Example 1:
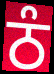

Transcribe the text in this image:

ਠੰ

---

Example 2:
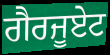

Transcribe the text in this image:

ਗੈਰਜੂਏਟ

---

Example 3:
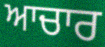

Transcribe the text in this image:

ਆਚਾਰ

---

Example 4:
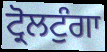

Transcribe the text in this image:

ਟ੍ਰੋਲਟੁੰਗਾ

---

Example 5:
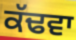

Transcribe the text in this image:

ਕੱਢਵਾ